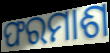
ଫରମାଶ